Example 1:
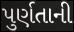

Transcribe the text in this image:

પુર્ણતાની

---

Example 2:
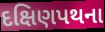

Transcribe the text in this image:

દક્ષિણપથના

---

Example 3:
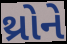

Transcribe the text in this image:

થ્રોને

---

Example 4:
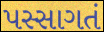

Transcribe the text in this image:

પસ્સાગતં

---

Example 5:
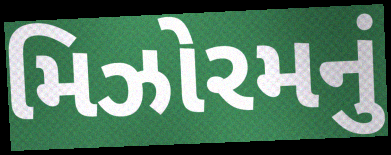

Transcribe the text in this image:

મિઝોરમનું